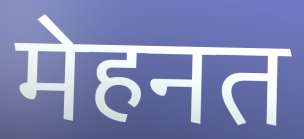
मेहनत